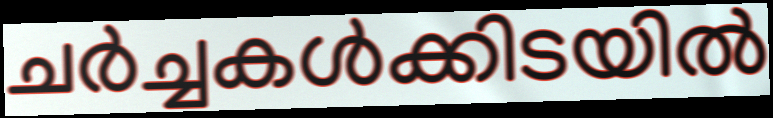
ചർച്ചകൾക്കിടയിൽ